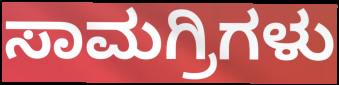
ಸಾಮಗ್ರಿಗಳು